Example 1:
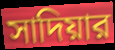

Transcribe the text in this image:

সাদিয়ার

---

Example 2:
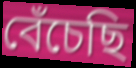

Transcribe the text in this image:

বেঁচেছি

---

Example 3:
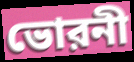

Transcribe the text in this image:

ভোরনী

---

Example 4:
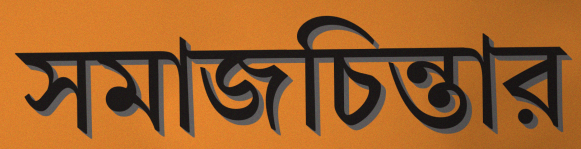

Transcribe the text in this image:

সমাজচিন্তার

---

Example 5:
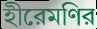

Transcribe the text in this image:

হীরেমণির